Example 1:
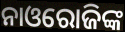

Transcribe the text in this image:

ନାଓରୋଜିଙ୍କ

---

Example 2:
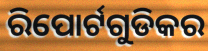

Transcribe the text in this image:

ରିପୋର୍ଟଗୁଡିକର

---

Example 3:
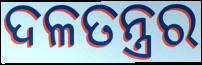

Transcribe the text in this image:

ଦଳତନ୍ତ୍ରର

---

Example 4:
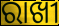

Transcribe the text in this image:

ରାଖୀ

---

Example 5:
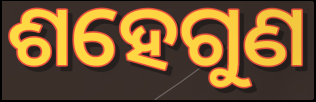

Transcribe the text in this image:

ଶହେଗୁଣ